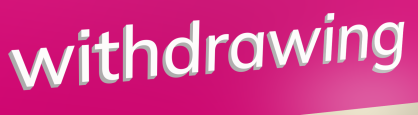
withdrawing